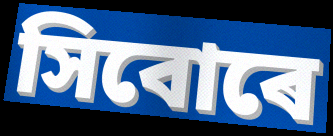
সিবোৰে